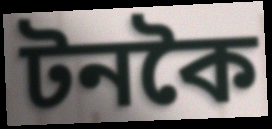
টনকৈ